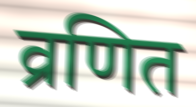
व्रणित